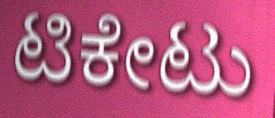
ಟಿಕೇಟು